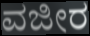
ವಜೀರ